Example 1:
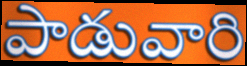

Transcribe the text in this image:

పాడువారి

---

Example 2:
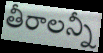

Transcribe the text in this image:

తీరాలన్నీ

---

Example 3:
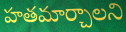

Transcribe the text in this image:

హతమార్చాలని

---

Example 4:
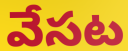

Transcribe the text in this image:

వేసట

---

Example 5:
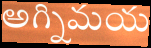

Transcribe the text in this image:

అగ్నిమయ